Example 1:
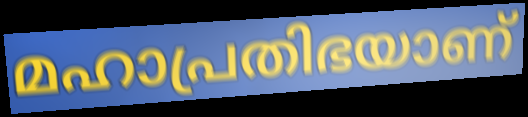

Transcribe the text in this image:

മഹാപ്രതിഭയാണ്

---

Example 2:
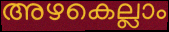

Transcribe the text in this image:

അഴകെല്ലാം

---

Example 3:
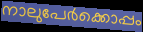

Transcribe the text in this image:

നാലുപേർക്കൊപ്പം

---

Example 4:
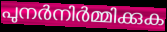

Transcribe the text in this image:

പുനർനിർമ്മിക്കുക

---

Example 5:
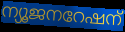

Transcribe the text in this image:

ന്യൂജനറേഷന്